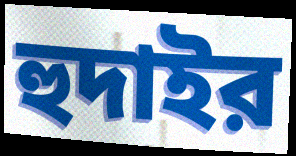
হুদাইর